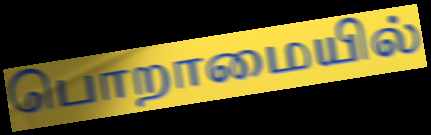
பொறாமையில்